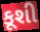
કૂશી